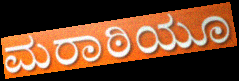
ಮರಾಠಿಯೂ